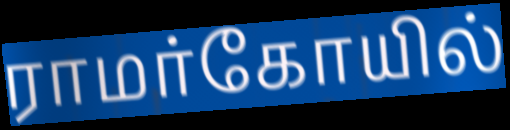
ராமர்கோயில்